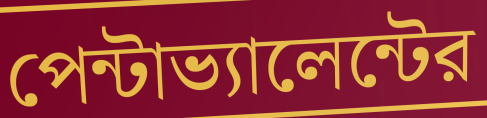
পেন্টাভ্যালেন্টের